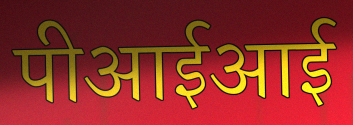
पीआईआई